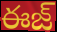
ఈజ్